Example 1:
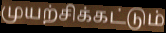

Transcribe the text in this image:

முயற்சிக்கட்டும்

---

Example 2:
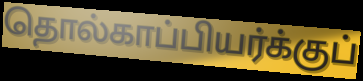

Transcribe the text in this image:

தொல்காப்பியர்க்குப்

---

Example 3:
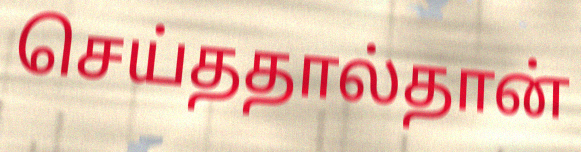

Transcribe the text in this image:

செய்ததால்தான்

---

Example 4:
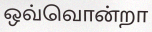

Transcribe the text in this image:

ஒவ்வொன்றா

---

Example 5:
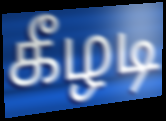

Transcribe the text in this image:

கீழடி